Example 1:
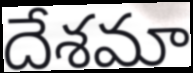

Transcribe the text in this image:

దేశమా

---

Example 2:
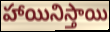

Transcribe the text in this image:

హాయినిస్తాయి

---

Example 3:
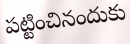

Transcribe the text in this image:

పట్టించినందుకు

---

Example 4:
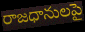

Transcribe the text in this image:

రాజధానులపై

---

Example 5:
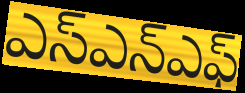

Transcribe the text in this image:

ఎస్ఎన్ఎఫ్